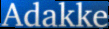
Adakke